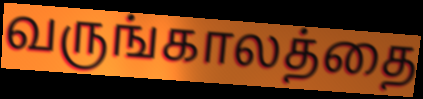
வருங்காலத்தை